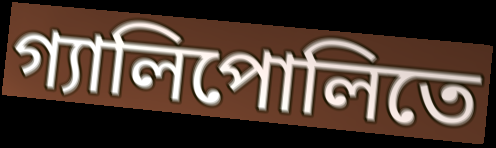
গ্যালিপোলিতে